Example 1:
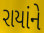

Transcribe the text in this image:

રાયાંને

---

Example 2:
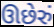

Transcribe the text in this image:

ઊછેરું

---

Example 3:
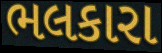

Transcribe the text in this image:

ભલકારા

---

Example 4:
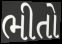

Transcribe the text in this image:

ભીતો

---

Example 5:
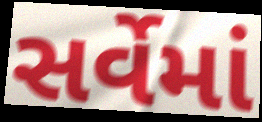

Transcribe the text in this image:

સર્વેમાં